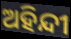
ଅହିନ୍ଦୀ